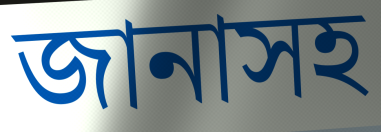
জানাসহ